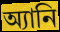
অ্যানি